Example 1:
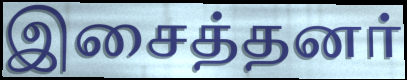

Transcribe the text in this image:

இசைத்தனர்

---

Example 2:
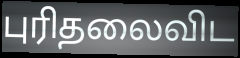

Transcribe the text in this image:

புரிதலைவிட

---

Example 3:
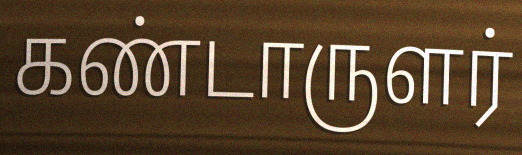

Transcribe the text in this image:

கண்டாருளர்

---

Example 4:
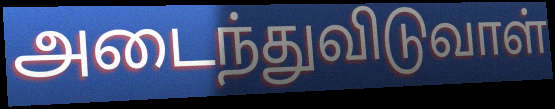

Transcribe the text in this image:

அடைந்துவிடுவாள்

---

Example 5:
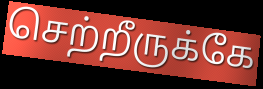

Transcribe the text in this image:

செற்றீருக்கே